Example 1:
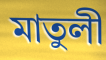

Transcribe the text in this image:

মাতুলী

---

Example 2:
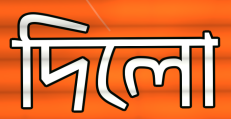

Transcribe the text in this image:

দিলো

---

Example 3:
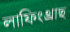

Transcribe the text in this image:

লাফিংথ্ৰাছ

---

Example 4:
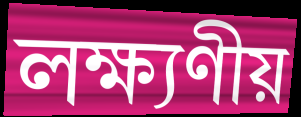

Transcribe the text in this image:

লক্ষ্যণীয়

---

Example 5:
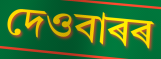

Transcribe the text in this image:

দেওবাৰৰ